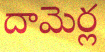
దామెర్ల